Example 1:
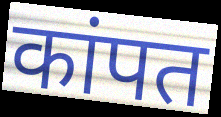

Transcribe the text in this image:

कांपत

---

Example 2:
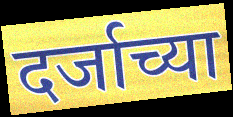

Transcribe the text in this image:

दर्जाच्या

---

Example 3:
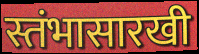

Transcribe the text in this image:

स्तंभासारखी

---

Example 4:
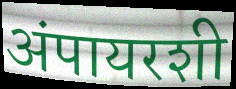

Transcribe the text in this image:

अंपायरशी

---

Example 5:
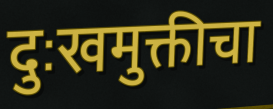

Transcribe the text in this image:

दुःखमुक्तीचा